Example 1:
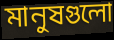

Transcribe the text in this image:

মানুষগুলো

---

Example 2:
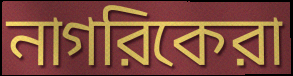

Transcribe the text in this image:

নাগরিকেরা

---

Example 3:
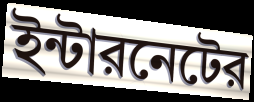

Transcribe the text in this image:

ইন্টারনেটের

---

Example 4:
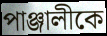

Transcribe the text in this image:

পাঞ্জালীকে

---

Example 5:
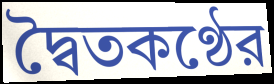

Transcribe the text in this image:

দ্বৈতকণ্ঠের